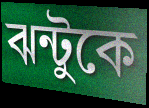
ঝন্টুকে